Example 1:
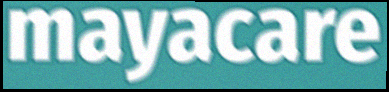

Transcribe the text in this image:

mayacare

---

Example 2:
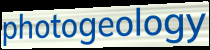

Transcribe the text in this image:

photogeology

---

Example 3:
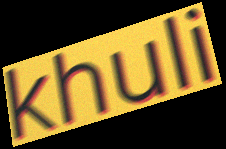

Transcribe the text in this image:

khuli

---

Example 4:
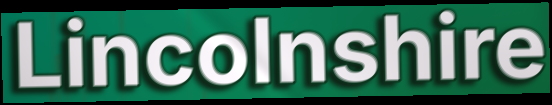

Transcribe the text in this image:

Lincolnshire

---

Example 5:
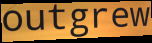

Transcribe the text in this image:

outgrew